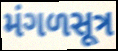
મંગળસૂત્ર